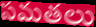
సమతలు